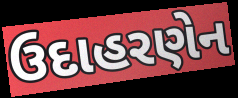
ઉદાહરણેન